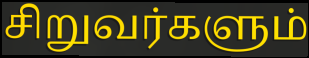
சிறுவர்களும்